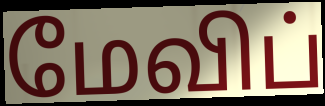
மேவிப்